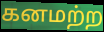
கனமற்ற